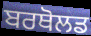
ਬਰਥੋਲਡ